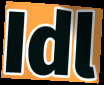
Idl